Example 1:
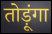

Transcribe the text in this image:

तोड़ूंगा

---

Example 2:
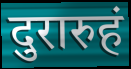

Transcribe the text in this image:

दुरारुहं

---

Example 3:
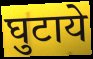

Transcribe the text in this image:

घुटाये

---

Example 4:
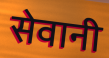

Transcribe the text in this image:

सेवानी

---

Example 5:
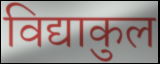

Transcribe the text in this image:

विद्याकुल